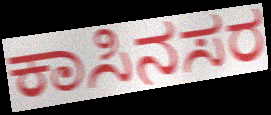
ಕಾಸಿನಸರ